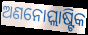
ଅଣନୋପ୍ଲାଷ୍ଟିକ